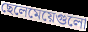
ছেলেমেয়েগুলো